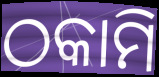
ଠକାମି